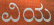
ವಿಯ